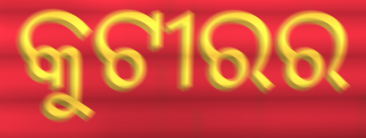
କୁଟୀରର